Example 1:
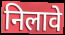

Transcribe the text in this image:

निलावे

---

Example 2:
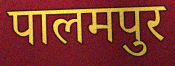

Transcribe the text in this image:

पालमपुर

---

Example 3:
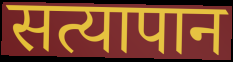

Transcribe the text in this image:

सत्यापान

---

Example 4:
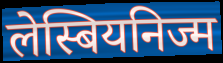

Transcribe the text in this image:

लेस्बियनिज्म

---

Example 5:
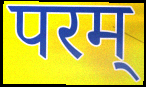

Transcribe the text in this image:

परम्